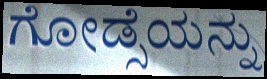
ಗೋಡ್ಸೆಯನ್ನು